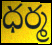
ధర్మ